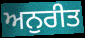
ਅਨੁਰੀਤ